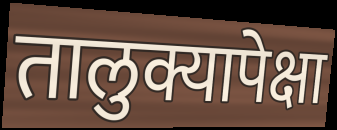
तालुक्यापेक्षा